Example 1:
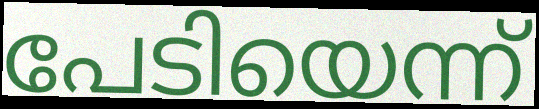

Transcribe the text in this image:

പേടിയെന്ന്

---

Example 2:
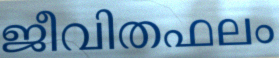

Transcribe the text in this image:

ജീവിതഫലം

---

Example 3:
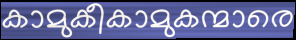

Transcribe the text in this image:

കാമുകീകാമുകന്മാരെ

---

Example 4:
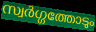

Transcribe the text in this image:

സ്വർഗ്ഗത്തോടും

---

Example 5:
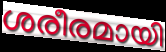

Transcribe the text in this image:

ശരീരമായി